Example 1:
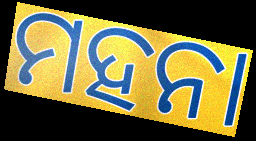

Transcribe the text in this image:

ମହନା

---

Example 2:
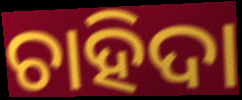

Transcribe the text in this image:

ଚାହିଦା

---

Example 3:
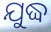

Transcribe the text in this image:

ଯୁଦ୍ଧ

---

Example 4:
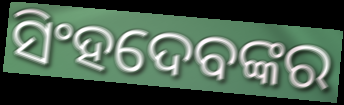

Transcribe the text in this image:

ସିଂହଦେବଙ୍କର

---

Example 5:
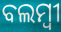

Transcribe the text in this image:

ବଲମ୍ୱୀ